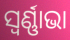
ସ୍ୱର୍ଣ୍ଣାଭା